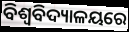
ବିଶ୍ବବିଦ୍ୟାଳୟରେ